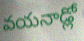
వయనాడ్లో